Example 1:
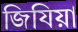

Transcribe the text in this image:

জিযিয়া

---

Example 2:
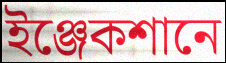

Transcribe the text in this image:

ইঞ্জেকশানে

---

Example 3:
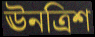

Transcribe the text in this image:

ঊনত্রিশ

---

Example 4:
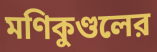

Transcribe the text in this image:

মণিকুণ্ডলের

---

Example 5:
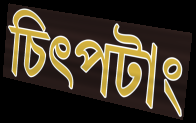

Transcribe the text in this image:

চিৎপটাং